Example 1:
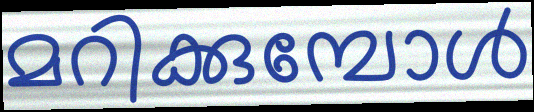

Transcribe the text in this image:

മറിക്കുമ്പോൾ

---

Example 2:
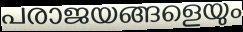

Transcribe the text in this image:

പരാജയങ്ങളെയും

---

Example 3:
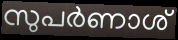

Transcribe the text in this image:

സുപർണാശ്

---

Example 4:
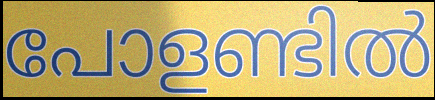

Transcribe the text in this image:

പോളണ്ടിൽ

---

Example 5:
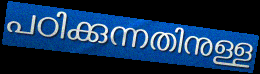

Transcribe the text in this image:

പഠിക്കുന്നതിനുള്ള